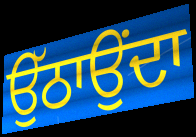
ਉੱਠਾਉਂਦਾ